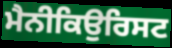
ਮੈਨੀਕਿਉਰਿਸਟ